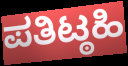
ಪತಿಟ್ಠಹಿ